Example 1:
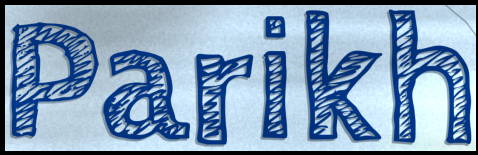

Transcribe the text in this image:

Parikh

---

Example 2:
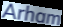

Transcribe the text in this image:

Arham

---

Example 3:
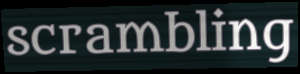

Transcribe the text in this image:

scrambling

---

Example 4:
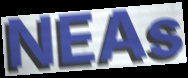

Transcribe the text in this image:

NEAs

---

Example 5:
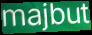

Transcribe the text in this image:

majbut